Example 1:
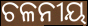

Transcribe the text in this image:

ଚଳନୀୟ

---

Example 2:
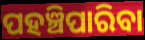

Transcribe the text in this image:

ପହଞ୍ଚିପାରିବା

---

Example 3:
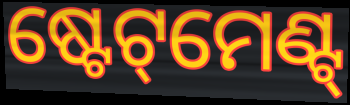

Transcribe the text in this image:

ଷ୍ଟେଟ୍‌ମେଣ୍ଟ୍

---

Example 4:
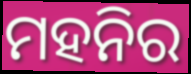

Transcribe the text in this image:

ମହନିର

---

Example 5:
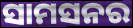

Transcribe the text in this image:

ସାମସନର